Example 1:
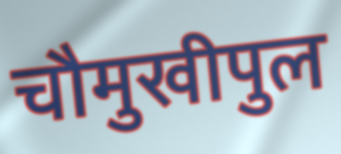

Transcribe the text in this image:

चौमुखीपुल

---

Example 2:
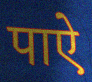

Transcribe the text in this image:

पाऐ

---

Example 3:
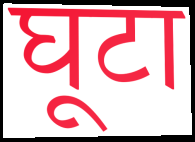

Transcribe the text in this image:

घूटा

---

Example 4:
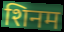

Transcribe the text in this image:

शिनम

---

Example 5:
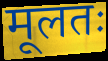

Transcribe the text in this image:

मूलतः